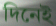
দিনেই